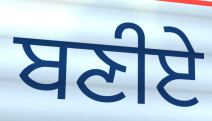
ਬਣੀਏ